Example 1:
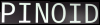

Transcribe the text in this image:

PINOID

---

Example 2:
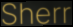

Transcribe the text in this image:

Sherr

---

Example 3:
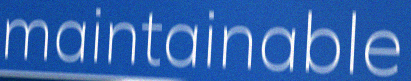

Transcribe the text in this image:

maintainable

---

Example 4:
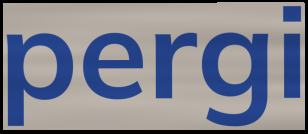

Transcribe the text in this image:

pergi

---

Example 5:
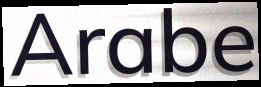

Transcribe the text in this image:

Arabe